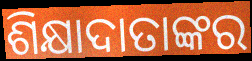
ଶିକ୍ଷାଦାତାଙ୍କର